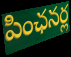
పింఛనర్ల